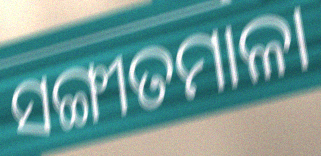
ସଙ୍ଗୀତମାଳା